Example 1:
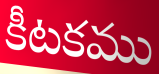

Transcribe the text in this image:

కీటకము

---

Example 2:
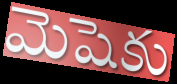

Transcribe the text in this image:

మెషెకు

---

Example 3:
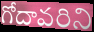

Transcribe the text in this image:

గోదావరిని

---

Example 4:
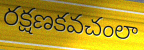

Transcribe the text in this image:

రక్షణకవచంలా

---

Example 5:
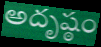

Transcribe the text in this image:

అదృష్ఠం